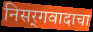
निसर्गवादाचा